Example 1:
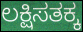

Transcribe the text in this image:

ಲಕ್ಷಿಸತಕ್ಕ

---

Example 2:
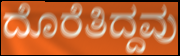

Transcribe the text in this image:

ದೊರೆತಿದ್ದವು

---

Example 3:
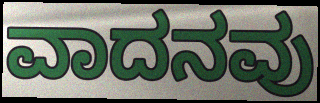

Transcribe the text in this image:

ವಾದನವು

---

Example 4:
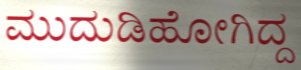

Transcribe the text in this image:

ಮುದುಡಿಹೋಗಿದ್ದ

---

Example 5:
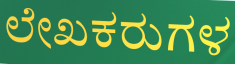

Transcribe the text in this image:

ಲೇಖಕರುಗಳ